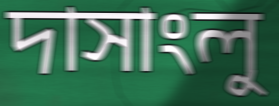
দাসাংলু